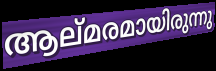
ആല്മരമായിരുന്നു